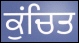
ਕੁਂਚਿਤ